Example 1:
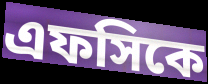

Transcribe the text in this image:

এফসিকে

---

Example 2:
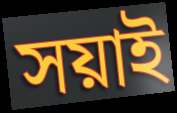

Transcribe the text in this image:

সয়াই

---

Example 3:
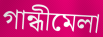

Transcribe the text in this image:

গান্ধীমেলা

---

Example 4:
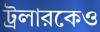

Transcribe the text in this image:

ট্রলারকেও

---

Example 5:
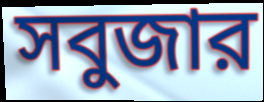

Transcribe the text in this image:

সবুজার